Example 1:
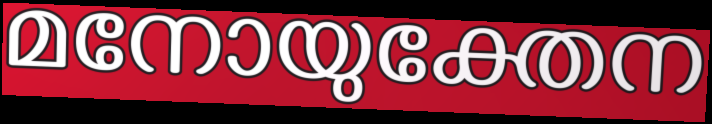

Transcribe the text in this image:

മനോയുക്തേന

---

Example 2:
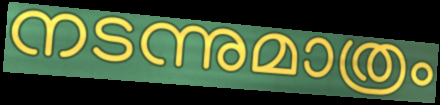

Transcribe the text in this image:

നടന്നുമാത്രം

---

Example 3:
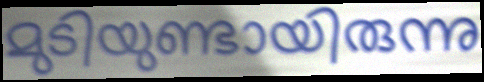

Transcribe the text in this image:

മുടിയുണ്ടായിരുന്നു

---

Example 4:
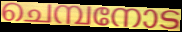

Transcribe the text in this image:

ചെമ്പനോട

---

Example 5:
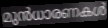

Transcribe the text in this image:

മുൻധാരണകൾ